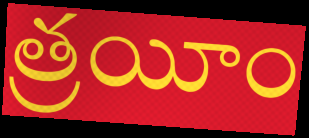
త్రయీం